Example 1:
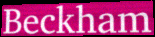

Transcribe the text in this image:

Beckham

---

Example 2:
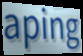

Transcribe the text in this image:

aping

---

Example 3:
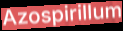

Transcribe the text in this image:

Azospirillum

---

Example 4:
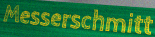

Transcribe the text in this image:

Messerschmitt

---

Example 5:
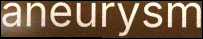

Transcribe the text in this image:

aneurysm